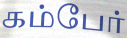
கம்பேர்